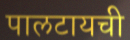
पालटायची